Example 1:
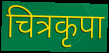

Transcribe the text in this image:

चित्रकृपा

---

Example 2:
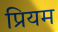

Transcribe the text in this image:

प्रियम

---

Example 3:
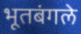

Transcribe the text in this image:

भूतबंगले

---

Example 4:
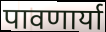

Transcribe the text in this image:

पावणार्या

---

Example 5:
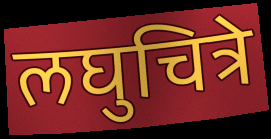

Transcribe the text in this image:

लघुचित्रे